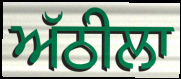
ਅੱਠੀਲਾ